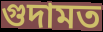
গুদামত